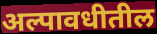
अल्पावधीतील